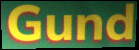
Gund